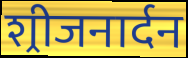
श्रीजनार्दन